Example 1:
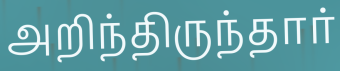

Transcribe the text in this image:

அறிந்திருந்தார்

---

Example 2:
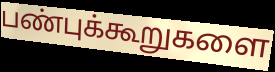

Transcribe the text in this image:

பண்புக்கூறுகளை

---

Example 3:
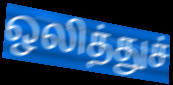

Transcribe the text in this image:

ஒலித்துச்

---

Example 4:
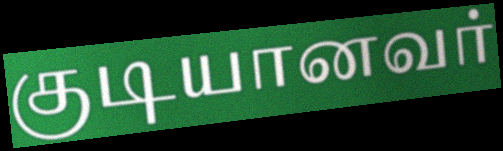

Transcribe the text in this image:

குடியானவர்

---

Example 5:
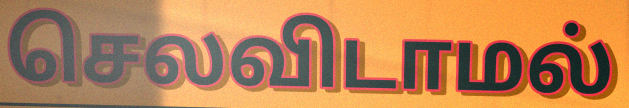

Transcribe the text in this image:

செலவிடாமல்